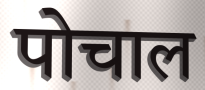
पोचाल